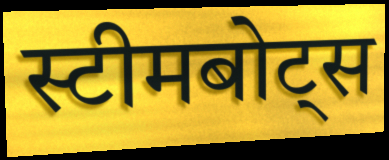
स्टीमबोट्स